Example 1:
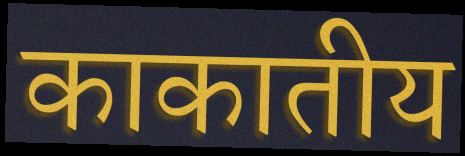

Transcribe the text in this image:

काकातीय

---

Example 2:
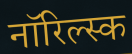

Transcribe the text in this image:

नॉरिल्स्क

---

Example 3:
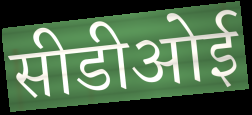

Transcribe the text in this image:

सीडीओई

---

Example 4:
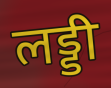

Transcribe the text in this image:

लड्डी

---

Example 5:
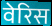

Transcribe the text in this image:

वेरिस